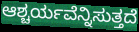
ಆಶ್ಚರ್ಯವೆನ್ನಿಸುತ್ತದೆ